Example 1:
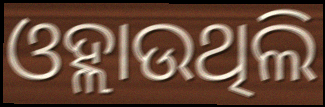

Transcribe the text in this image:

ଓହ୍ଲାଉଥିଲି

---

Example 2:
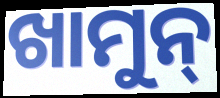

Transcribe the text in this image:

ଖାମୁନ୍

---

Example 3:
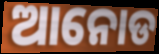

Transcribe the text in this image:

ଆନୋଡ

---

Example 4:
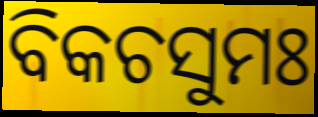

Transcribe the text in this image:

ବିକଚସୁମଃ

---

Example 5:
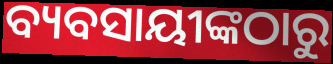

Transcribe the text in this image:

ବ୍ୟବସାୟୀଙ୍କଠାରୁ